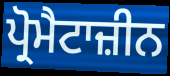
ਪ੍ਰੋਮੈਟਾਜ਼ੀਨ